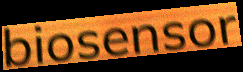
biosensor